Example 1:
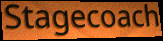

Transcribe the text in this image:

Stagecoach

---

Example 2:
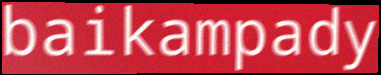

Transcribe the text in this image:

baikampady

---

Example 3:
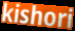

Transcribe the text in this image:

kishori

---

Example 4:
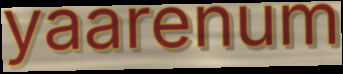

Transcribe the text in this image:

yaarenum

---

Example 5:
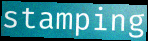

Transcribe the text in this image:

stamping